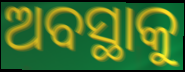
ଅବସ୍ଥାକୁ